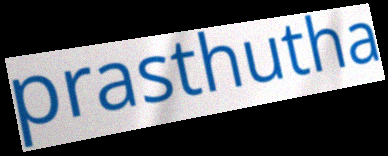
prasthutha